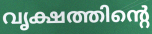
വൃക്ഷത്തിന്റെ